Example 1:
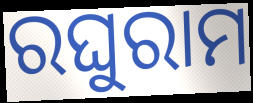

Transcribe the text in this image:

ରଘୁରାମ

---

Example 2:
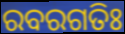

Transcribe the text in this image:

ରବରଗତିଃ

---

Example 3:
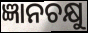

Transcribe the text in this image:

ଜ୍ଞାନଚକ୍ଷୁ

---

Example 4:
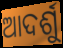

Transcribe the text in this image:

ଆଦର୍ଶୁ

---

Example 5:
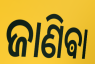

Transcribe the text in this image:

ଜାଣିଵା